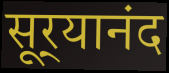
सूर्यानंद